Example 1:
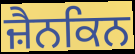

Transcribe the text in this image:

ਜ਼ੈਨਕਿਨ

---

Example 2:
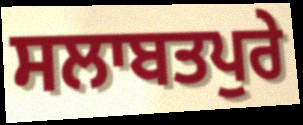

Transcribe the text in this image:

ਸਲਾਬਤਪੁਰੇ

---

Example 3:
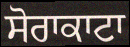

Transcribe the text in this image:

ਸੋਰਾਕਾਟਾ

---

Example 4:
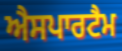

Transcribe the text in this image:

ਐਸਪਾਰਟੈਮ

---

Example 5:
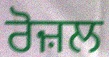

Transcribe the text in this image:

ਰੋਜ਼ਲ